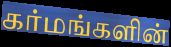
கர்மங்களின்